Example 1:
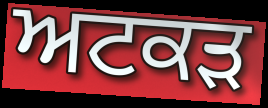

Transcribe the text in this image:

ਅਟਕੜ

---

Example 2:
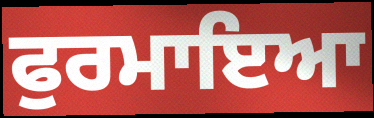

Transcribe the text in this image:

ਫੁਰਮਾਇਆ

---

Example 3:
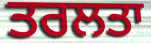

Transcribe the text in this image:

ਤਰਲਤਾ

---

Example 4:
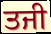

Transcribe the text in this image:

ਤਜੀ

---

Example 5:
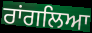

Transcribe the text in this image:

ਰਾਂਗਲਿਆ